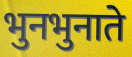
भुनभुनाते